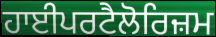
ਹਾਈਪਰਟੈਲੋਰਿਜ਼ਮ